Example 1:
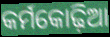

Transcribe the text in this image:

କର୍ମକୋଢ଼ିଆ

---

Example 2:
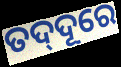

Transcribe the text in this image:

ତଦ୍‍ଦୂରେ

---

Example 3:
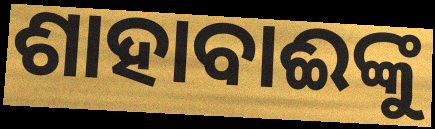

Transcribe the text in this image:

ଶାହାବାଈଙ୍କୁ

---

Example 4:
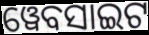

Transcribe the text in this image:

ୱେବସାଇଟ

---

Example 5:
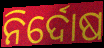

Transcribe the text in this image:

ନିର୍ଦୋଷ